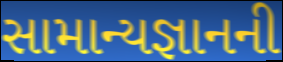
સામાન્યજ્ઞાનની